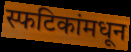
स्फटिकांमधून